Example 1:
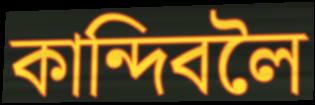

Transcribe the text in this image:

কান্দিবলৈ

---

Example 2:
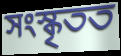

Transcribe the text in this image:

সংস্কৃতত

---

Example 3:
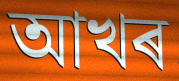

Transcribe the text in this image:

আখৰ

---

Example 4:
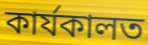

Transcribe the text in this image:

কাৰ্যকালত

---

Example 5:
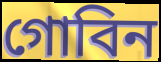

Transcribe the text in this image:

গোবিন